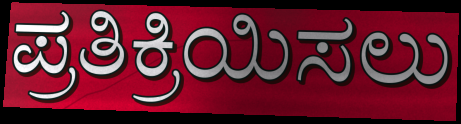
ಪ್ರತಿಕ್ರಿಯಿಸಲು